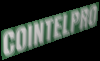
COINTELPRO